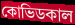
কোভিডকাল